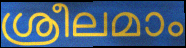
ശ്രീലമാം